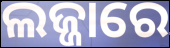
ଲଜ୍ଜାରେ